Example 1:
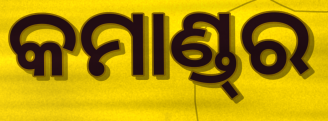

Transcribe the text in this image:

କମାଣ୍ଡ୍‌ର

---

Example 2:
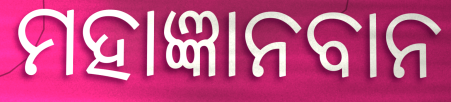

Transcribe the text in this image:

ମହାଜ୍ଞାନବାନ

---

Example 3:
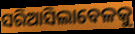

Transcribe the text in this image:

ସରିଆସିଲାବେଳକୁ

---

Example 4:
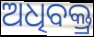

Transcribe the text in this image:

ଅଧିବକ୍ତ୍ର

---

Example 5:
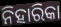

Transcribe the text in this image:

ନିହାରିକା